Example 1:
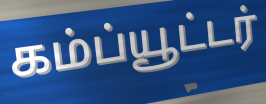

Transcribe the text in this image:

கம்ப்யூட்டர்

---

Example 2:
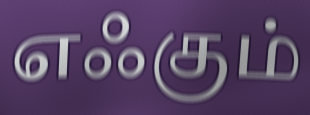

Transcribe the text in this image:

எஃகும்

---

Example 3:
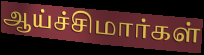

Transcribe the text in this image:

ஆய்ச்சிமார்கள்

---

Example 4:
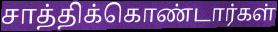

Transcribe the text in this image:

சாத்திக்கொண்டார்கள்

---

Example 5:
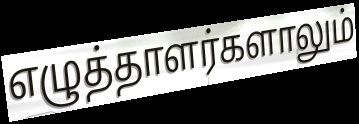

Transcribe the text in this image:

எழுத்தாளர்களாலும்